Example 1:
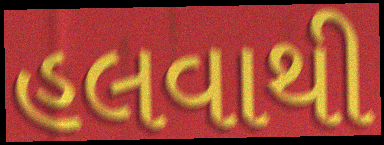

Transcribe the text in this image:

હલવાથી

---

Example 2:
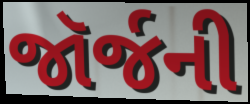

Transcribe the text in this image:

જૉર્જની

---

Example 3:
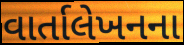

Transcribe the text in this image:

વાર્તાલેખનના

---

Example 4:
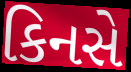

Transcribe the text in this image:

કિનસે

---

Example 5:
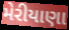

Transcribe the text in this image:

મેરીયાણા